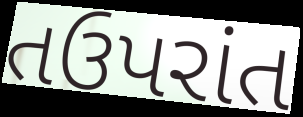
તઉપરાંત